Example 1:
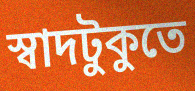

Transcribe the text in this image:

স্বাদটুকুতে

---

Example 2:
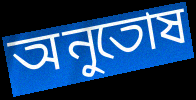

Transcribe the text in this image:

অনুতোষ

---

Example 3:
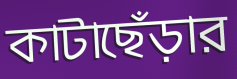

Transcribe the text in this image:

কাটাছেঁড়ার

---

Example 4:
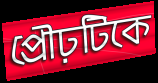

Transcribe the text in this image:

প্রৌঢ়টিকে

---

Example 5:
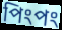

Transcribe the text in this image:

পিংপং